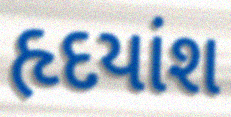
હૃદયાંશ